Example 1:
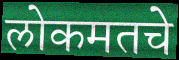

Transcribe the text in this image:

लोकमतचे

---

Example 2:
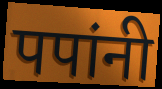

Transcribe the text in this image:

पपांनी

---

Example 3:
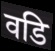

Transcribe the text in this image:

वडि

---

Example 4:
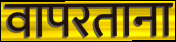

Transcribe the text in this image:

वापरताना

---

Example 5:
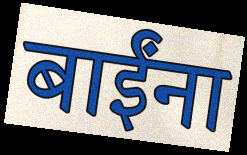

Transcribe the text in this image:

बाईंना